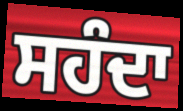
ਸਹੰਦਾ